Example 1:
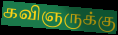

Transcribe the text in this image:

கவிஞருக்கு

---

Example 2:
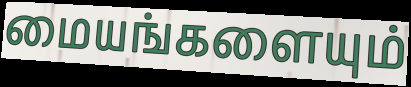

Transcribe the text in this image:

மையங்களையும்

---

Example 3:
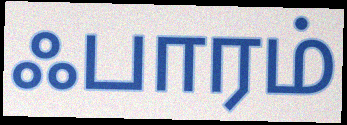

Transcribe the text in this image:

ஃபாரம்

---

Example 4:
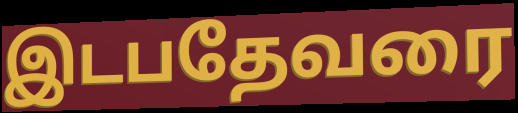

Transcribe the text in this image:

இடபதேவரை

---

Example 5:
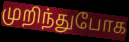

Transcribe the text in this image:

முறிந்துபோக